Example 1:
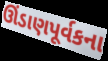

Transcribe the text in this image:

ઊંડાણપૂર્વકના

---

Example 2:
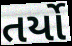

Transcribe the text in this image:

તર્યો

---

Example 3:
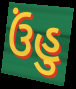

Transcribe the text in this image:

ઉંહુ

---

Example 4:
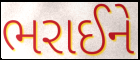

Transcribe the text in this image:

ભરાઈને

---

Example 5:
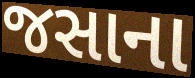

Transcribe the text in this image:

જસાના